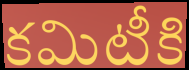
కమిటీకి